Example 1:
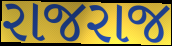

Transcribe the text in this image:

રાજરાજ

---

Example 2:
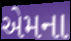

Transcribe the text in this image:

એમના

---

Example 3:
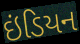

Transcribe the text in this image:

ઇંડિયન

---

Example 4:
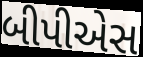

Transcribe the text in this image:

બીપીએસ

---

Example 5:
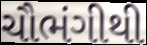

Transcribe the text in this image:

ચૌભંગીથી